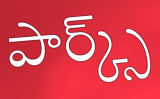
పార్క్స్